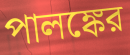
পালঙ্কের